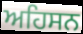
ਅਹਿਸਨ